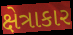
ક્ષેત્રાકાર